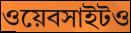
ওয়েবসাইটও